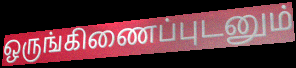
ஒருங்கிணைப்புடனும்